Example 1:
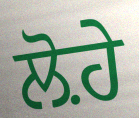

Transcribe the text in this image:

ਲ਼ੋਹੇ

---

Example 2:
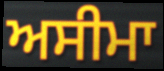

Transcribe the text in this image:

ਅਸੀਮਾ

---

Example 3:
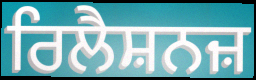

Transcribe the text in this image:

ਰਿਲੈਸ਼ਨਜ਼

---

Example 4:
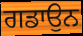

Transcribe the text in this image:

ਗਡਾਉਨ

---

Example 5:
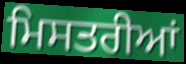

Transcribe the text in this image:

ਮਿਸਤਰੀਆਂ